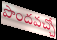
పొందవచ్చో